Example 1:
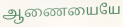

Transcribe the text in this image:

ஆணையையே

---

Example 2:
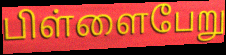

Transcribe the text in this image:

பிள்ளைபேறு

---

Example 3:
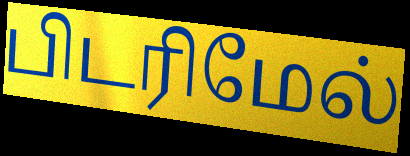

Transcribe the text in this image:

பிடரிமேல்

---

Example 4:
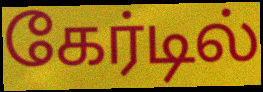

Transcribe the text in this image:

கேர்டில்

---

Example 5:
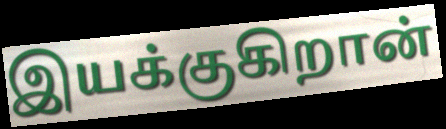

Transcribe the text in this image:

இயக்குகிறான்